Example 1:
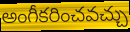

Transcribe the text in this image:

అంగీకరించవచ్చు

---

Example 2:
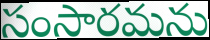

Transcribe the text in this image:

సంసారమను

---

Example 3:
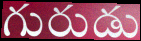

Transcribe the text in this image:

గురుడు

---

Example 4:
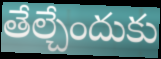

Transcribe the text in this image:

తేల్చేందుకు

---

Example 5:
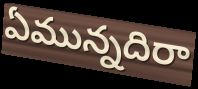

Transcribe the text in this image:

ఏమున్నదిరా